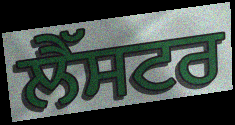
ਲੈੱਸਟਰ